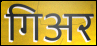
गिअर